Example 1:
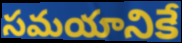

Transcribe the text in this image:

సమయానికే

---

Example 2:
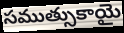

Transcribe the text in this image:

సముత్సుకాయై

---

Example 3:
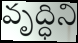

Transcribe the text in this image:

వృద్ధిని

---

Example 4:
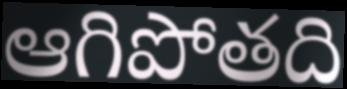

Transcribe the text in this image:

ఆగిపోతది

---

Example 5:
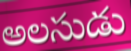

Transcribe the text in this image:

అలసుడు